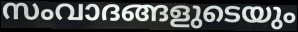
സംവാദങ്ങളുടെയും